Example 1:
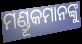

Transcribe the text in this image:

ମଣ୍ଡୂକମାନଙ୍କୁ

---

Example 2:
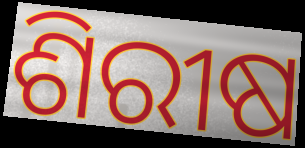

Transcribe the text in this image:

ଶିରୀଷ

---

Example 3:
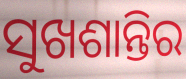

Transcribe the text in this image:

ସୁଖଶାନ୍ତିର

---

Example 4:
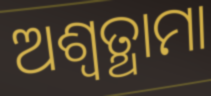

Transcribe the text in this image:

ଅଶ୍ଵତ୍ଥାମା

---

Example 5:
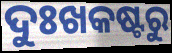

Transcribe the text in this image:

ଦୁଃଖକଷ୍ଟରୁ